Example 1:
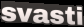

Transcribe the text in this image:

svasti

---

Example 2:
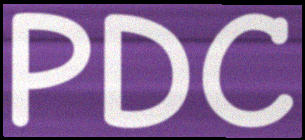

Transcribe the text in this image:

PDC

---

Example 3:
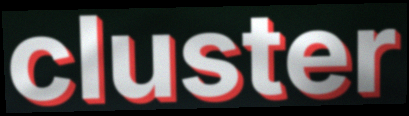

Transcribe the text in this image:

cluster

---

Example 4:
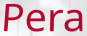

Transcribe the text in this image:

Pera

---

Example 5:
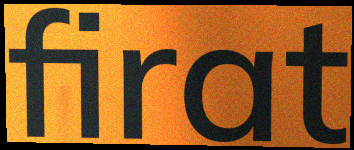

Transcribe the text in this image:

firat